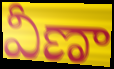
వీణా